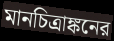
মানচিত্রাঙ্কনের